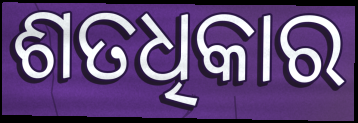
ଶତଧିକାର